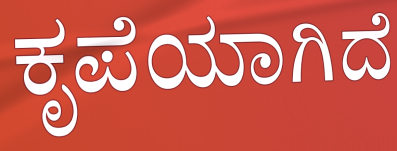
ಕೃಪೆಯಾಗಿದೆ